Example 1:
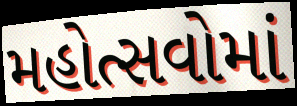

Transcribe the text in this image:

મહોત્સવોમાં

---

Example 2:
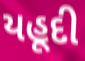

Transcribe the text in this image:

યહૂદી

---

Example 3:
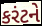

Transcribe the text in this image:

કરંટને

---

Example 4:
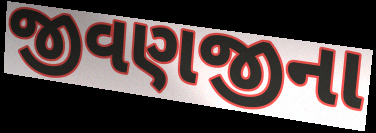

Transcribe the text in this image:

જીવણજીના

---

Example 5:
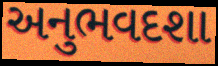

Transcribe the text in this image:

અનુભવદશા